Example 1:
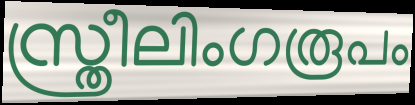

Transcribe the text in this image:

സ്ത്രീലിംഗരൂപം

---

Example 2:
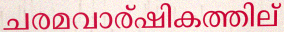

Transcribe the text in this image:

ചരമവാര്ഷികത്തില്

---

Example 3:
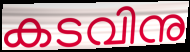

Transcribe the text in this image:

കടവിനു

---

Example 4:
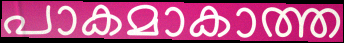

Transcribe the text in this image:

പാകമാകാത്ത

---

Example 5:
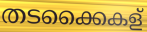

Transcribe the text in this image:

തടക്കൈകള്